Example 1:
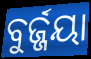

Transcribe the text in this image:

ବୁର୍ଜ୍ଜୟା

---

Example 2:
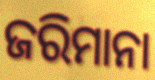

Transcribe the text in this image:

ଜରିମାନା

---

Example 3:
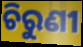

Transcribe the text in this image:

ଚିରୁଣୀ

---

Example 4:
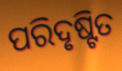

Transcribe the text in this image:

ପରିଦୃଷ୍ଟିତ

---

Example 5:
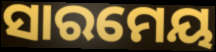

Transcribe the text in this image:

ସାରମେୟ